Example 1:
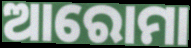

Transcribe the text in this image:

ଆରୋମା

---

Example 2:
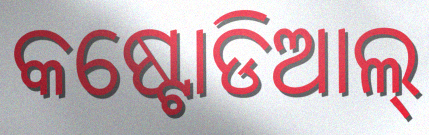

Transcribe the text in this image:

କଷ୍ଟୋଡିଆଲ୍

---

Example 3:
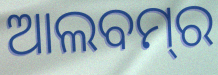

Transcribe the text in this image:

ଆଲବମ୍‌ର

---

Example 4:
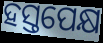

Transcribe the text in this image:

ହସ୍ତପେକ୍ଷ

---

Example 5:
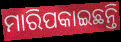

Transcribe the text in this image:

ମାରିପକାଇଛନ୍ତି